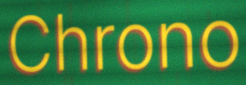
Chrono